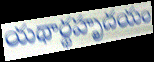
యథార్థహృదయం